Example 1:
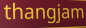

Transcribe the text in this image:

thangjam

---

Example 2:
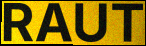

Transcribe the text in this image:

RAUT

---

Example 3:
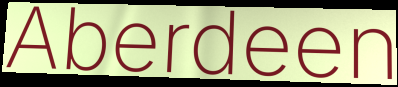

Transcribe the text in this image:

Aberdeen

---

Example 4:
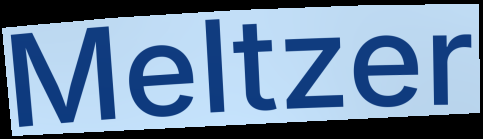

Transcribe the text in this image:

Meltzer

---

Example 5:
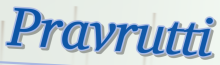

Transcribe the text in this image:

Pravrutti